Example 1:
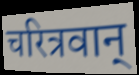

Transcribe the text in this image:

चरित्रवान्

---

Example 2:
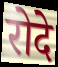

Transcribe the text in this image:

रोदे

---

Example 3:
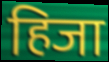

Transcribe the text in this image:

हिजा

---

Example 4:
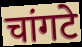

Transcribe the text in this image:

चांगटे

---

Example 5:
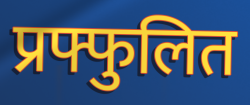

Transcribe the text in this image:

प्रफ्फुलित